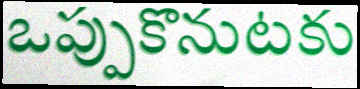
ఒప్పుకొనుటకు